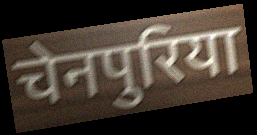
चेनपुरिया